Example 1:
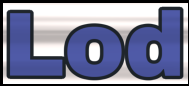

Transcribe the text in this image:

Lod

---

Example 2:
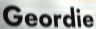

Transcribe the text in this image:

Geordie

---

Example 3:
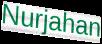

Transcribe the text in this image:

Nurjahan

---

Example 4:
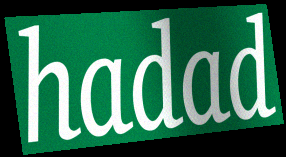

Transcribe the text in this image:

hadad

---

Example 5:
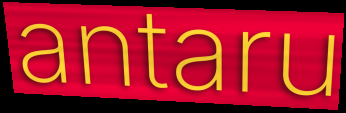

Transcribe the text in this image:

antaru